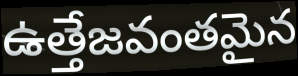
ఉత్తేజవంతమైన